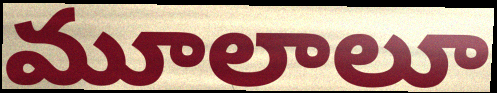
మూలాలూ